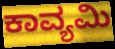
ಕಾವ್ಯಮಿ